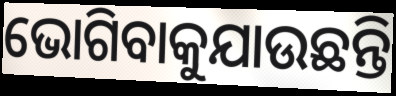
ଭୋଗିବାକୁଯାଉଛନ୍ତି